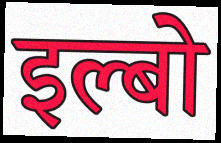
इल्बो